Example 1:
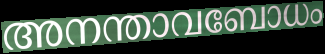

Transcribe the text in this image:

അനന്താവബോധം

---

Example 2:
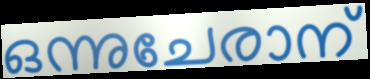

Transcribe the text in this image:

ഒന്നുചേരാന്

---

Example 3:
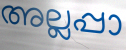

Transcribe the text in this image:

അല്ലപ്പാ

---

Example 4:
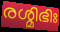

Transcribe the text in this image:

രശ്മിഭിഃ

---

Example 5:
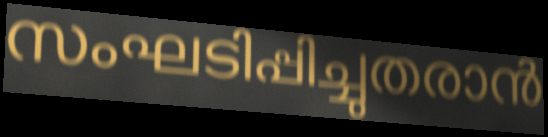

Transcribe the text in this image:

സംഘടിപ്പിച്ചുതരാൻ